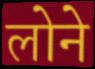
लोने